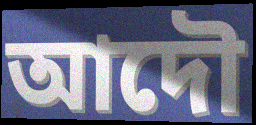
আদৌ